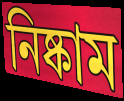
নিষ্কাম